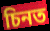
চিনত